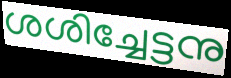
ശശിച്ചേട്ടനു